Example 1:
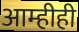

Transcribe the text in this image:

आम्हीही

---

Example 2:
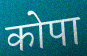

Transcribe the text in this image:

कोपा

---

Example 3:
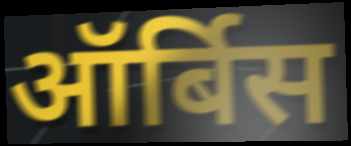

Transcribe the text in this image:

ऑर्बिस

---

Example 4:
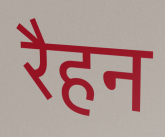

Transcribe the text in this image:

रैहन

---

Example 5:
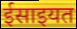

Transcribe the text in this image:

ईसाइयत